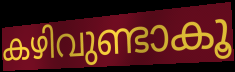
കഴിവുണ്ടാകൂ